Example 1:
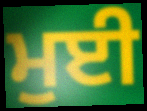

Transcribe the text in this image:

ਮੁਈ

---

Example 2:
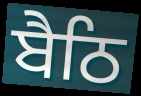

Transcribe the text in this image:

ਬੈਠਿ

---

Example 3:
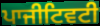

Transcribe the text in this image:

ਪਾਜੀਟਿਵਟੀ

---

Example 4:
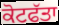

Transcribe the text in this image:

ਕੋਟਫੱਤਾ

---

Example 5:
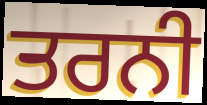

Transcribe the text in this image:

ਤਰਨੀ